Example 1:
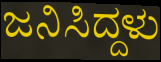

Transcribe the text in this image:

ಜನಿಸಿದ್ದಳು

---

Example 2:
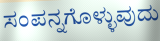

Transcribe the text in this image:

ಸಂಪನ್ನಗೊಳ್ಳುವುದು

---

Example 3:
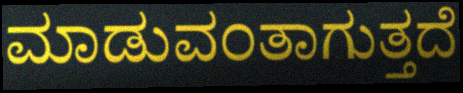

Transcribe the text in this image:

ಮಾಡುವಂತಾಗುತ್ತದೆ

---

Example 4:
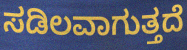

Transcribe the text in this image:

ಸಡಿಲವಾಗುತ್ತದೆ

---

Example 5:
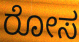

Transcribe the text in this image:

ರೋಸ